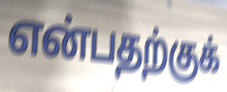
என்பதற்குக்